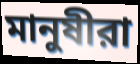
মানুষীরা